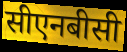
सीएनबीसी